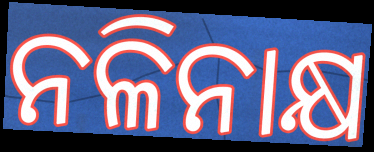
ନଳିନାକ୍ଷ